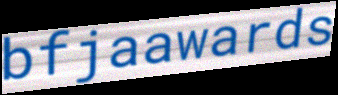
bfjaawards